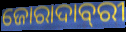
ଜୋରାଦାବ୍‌ରୀ